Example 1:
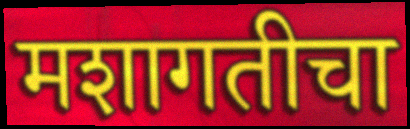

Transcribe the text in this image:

मशागतीचा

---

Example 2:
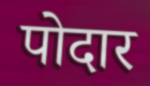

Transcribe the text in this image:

पोदार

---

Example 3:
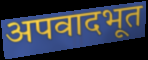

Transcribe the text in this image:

अपवादभूत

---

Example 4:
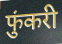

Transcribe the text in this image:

फुंकरी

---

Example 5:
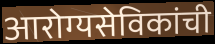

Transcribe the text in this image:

आरोग्यसेविकांची